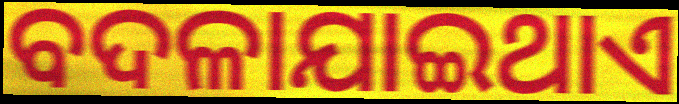
ବଦଳାଯାଇଥାଏ